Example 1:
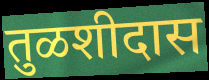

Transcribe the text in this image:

तुळशीदास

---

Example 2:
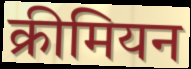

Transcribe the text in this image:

क्रीमियन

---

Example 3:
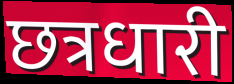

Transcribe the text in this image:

छत्रधारी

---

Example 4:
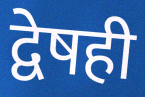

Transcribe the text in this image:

द्वेषही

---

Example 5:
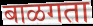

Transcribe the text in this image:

बाळगता